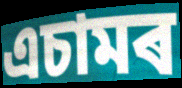
এচামৰ